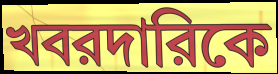
খবরদারিকে